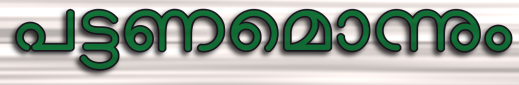
പട്ടണമൊന്നും